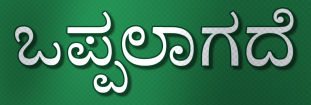
ಒಪ್ಪಲಾಗದೆ